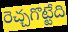
రెచ్చగొట్టేది